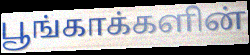
பூங்காக்களின்